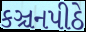
કઞ્ચનપીઠે